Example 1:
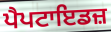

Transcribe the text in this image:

ਪੈਪਟਾਇਡਜ਼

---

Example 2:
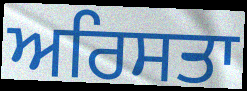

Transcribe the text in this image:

ਅਰਿਸਤਾ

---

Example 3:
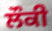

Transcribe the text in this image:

ਲੌਕੀ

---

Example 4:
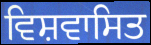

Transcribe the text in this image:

ਵਿਸ਼ਵਾਸਿਤ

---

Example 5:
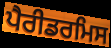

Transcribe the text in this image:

ਪੈਰੀਡਰਮਿਸ